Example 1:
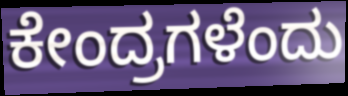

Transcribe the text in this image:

ಕೇಂದ್ರಗಳೆಂದು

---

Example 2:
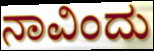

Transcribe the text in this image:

ನಾವಿಂದು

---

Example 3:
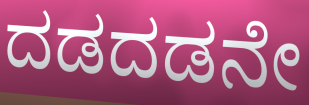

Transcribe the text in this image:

ದಡದಡನೇ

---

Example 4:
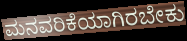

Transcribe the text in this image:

ಮನವರಿಕೆಯಾಗಿರಬೇಕು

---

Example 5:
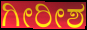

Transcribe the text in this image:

ಗೀರೀಶ